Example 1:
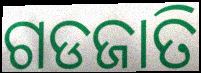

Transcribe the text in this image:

ଗଡଜାତି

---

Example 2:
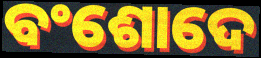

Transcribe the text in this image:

ବଂଶୋଦେ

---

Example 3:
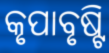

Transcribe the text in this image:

କୃପାବୃଷ୍ଟି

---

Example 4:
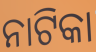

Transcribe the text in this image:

ନାଟିକା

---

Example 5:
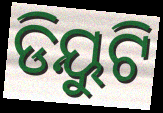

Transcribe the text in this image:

ଡିୟୁଟି